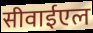
सीवाईएल